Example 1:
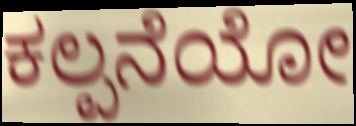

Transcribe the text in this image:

ಕಲ್ಪನೆಯೋ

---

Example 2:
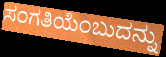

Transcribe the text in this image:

ಸಂಗತಿಯೆಂಬುದನ್ನು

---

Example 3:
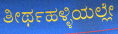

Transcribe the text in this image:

ತೀರ್ಥಹಳ್ಳಿಯಲ್ಲೇ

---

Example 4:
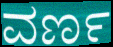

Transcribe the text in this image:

ವರ್ಣ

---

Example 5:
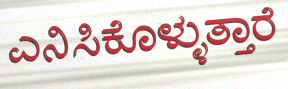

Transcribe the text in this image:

ಎನಿಸಿಕೊಳ್ಳುತ್ತಾರೆ